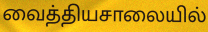
வைத்தியசாலையில்